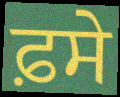
ਫ਼ਸੇ